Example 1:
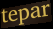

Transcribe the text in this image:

tepar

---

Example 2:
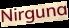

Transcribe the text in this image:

Nirguna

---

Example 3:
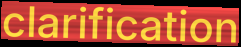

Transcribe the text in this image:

clarification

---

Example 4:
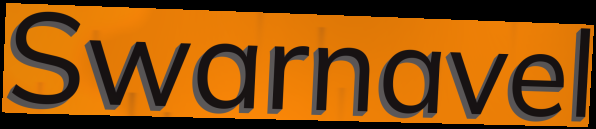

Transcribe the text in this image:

Swarnavel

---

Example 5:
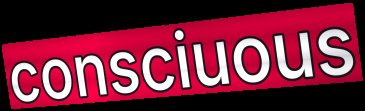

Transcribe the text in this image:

consciuous